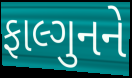
ફાલ્ગુનને